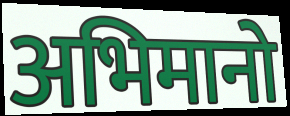
अभिमानो